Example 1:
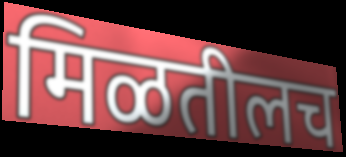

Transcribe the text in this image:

मिळतीलच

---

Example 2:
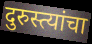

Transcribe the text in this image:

दुरुस्त्यांचा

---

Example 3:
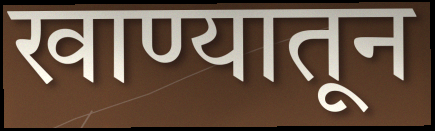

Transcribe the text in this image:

खाण्यातून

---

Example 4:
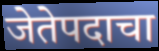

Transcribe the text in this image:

जेतेपदाचा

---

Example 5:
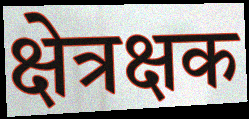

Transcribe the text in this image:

क्षेत्रक्षक